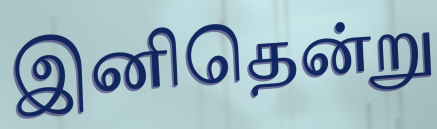
இனிதென்று